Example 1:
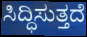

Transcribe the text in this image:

ಸಿದ್ಧಿಸುತ್ತದೆ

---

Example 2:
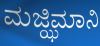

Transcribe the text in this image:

ಮಜ್ಝಿಮಾನಿ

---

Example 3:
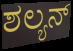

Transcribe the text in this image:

ಶಲ್ಯನ್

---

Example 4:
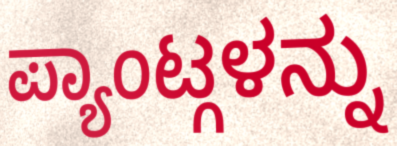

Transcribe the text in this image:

ಪ್ಯಾಂಟ್ಗಳನ್ನು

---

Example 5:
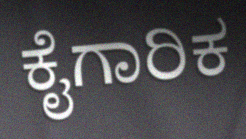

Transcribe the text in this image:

ಕೈಗಾರಿಕ